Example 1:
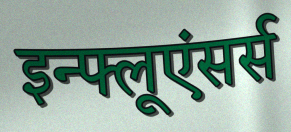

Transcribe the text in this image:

इन्फ्लूएंसर्स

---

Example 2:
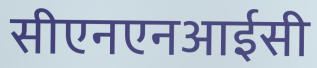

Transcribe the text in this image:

सीएनएनआईसी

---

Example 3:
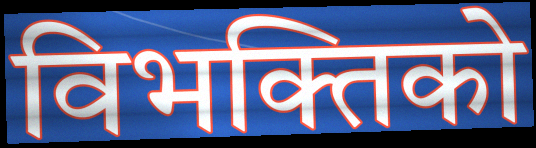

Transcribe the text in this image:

विभक्तिको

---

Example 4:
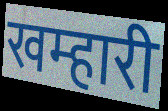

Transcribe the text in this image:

खम्हारी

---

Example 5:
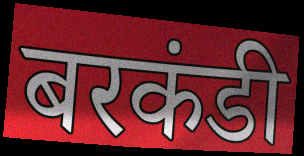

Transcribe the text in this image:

बरकंडी